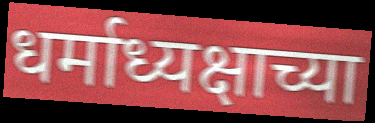
धर्माध्यक्षाच्या